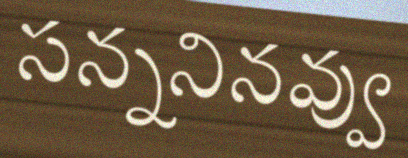
సన్ననినవ్వు